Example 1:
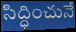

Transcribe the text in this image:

సిద్ధించునే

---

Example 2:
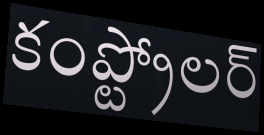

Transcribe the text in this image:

కంప్ట్రోలర్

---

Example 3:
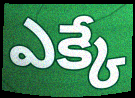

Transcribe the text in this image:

ఎక్కే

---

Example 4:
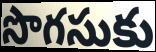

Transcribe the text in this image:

సొగసుకు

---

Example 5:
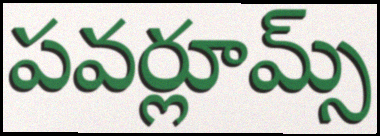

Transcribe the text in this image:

పవర్లూమ్స్